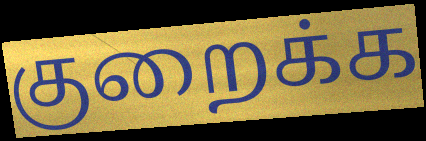
குறைக்க